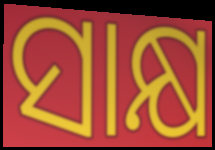
ସାକ୍ଷ